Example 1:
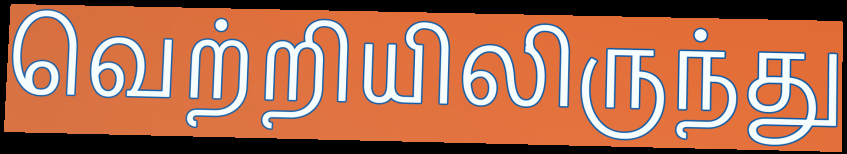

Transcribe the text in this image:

வெற்றியிலிருந்து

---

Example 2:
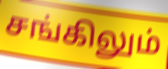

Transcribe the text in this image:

சங்கிலும்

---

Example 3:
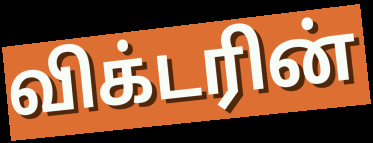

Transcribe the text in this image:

விக்டரின்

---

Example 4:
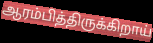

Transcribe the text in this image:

ஆரம்பித்திருக்கிறாய்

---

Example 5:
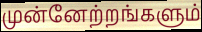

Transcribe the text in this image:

முன்னேற்றங்களும்